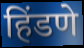
हिंडणे